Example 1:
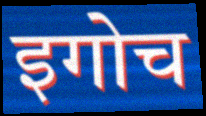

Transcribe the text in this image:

इगोच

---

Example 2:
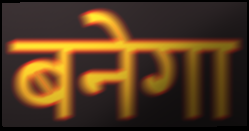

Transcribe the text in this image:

बनेगा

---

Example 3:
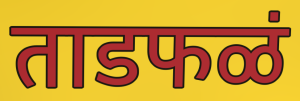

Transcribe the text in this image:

ताडफळं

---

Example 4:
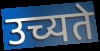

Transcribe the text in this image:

उच्यते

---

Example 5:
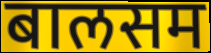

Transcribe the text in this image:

बालसम